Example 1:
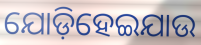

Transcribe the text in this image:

ଯୋଡ଼ିହେଇଯାଉ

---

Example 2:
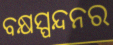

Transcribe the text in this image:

ବକ୍ଷସ୍ପନ୍ଦନର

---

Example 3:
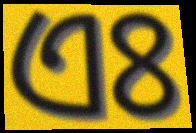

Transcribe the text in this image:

ଏଃ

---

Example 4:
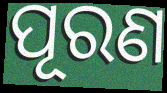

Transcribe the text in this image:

ପୂରଣ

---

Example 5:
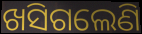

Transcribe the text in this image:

ଖସିଗଲେଣି